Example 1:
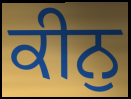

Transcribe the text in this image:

ਕੀਨੁ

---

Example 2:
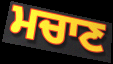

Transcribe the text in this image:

ਮਚਾਣ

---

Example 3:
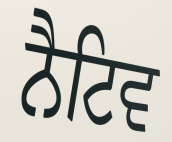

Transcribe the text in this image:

ਨੈਟਿਵ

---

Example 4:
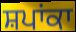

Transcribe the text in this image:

ਸ਼ਪਾਂਕਾ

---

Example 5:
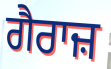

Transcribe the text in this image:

ਗੈਰਾਜ਼